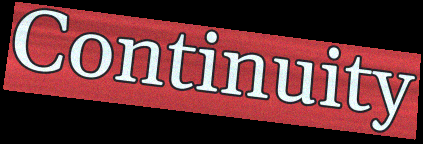
Continuity